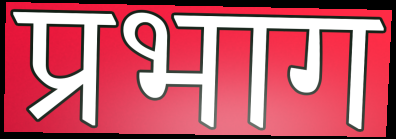
प्रभाग